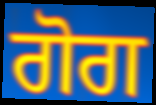
ਗੋਗ